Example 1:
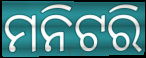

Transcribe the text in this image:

ମନିଟରି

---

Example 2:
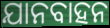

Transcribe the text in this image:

ଯାନବାହନ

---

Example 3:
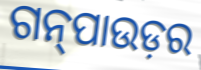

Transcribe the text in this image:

ଗନ୍‍ପାଉଡ଼ର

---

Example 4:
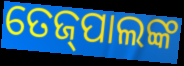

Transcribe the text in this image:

ତେଜ୍‌ପାଲଙ୍କ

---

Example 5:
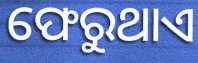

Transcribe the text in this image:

ଫେରୁଥାଏ